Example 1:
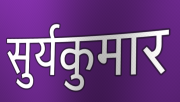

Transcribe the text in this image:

सुर्यकुमार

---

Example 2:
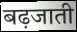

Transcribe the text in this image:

बढ़जाती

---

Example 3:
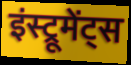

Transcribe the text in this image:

इंस्ट्रूमेंट्स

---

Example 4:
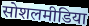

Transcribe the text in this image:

सोशलमीडिया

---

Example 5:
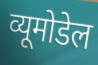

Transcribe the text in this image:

व्यूमोडेल